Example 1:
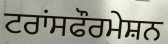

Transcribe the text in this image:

ਟਰਾਂਸਫੌਰਮੇਸ਼ਨ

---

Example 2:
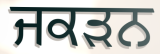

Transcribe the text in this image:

ਜਕੜਨ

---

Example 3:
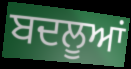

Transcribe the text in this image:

ਬਦਲੂਆਂ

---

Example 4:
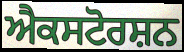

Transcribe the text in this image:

ਐਕਸਟੋਰਸ਼ਨ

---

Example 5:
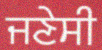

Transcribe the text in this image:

ਜਣੇਸੀ